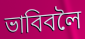
ভাবিবলৈ